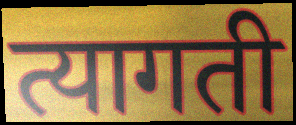
त्यागती